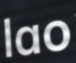
lao